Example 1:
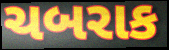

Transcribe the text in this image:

ચબરાક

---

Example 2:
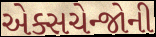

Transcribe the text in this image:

એક્સચેન્જોની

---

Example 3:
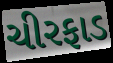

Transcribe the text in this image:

ચીરફાડ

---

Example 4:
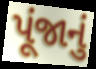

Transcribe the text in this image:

પૂંજાનું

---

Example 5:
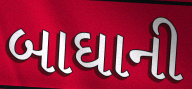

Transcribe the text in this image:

બાઘાની